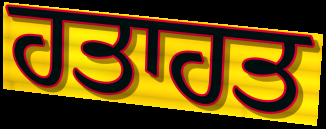
ਹਤਾਹਤ